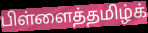
பிள்ளைத்தமிழ்க்